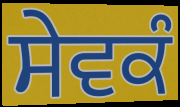
ਸੇਵਕੰ